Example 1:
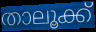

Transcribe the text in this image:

താലൂക്ക്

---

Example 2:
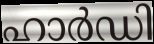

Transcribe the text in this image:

ഹാർഡി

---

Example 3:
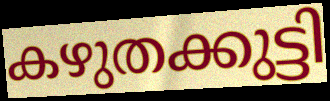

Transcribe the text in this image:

കഴുതക്കുട്ടി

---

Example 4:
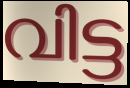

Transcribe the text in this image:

വിട്ട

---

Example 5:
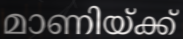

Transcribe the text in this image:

മാണിയ്ക്ക്